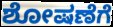
ಶೋಷಣೆಗೆ